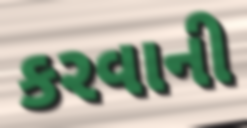
કરવાની